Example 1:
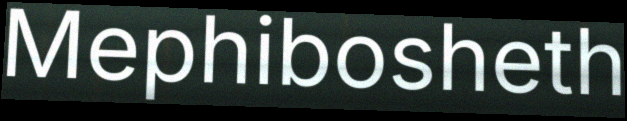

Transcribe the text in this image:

Mephibosheth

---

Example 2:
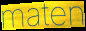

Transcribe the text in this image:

maten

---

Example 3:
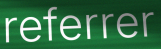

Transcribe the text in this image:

referrer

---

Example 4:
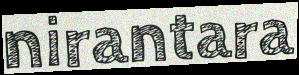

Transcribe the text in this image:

nirantara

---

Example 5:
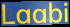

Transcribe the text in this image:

Laabi